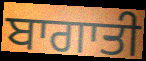
ਬਾਗਾਤੀ